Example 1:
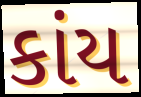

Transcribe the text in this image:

કાંય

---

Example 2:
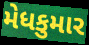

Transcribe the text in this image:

મેધકુમાર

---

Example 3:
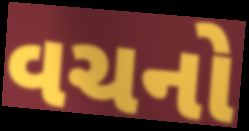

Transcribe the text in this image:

વચનો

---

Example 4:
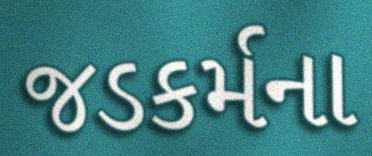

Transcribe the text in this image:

જડકર્મના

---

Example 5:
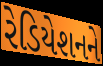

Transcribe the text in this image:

રેડિયેશનને